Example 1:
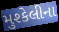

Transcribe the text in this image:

મુશ્કેલીના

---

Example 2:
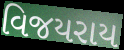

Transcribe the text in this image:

વિજયરાય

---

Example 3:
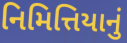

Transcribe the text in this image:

નિમિત્તિયાનું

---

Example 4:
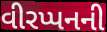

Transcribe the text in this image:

વીરપ્પનની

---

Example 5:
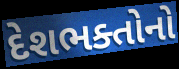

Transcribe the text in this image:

દેશભક્તોનો